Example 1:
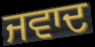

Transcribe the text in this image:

ਜਵਾਦ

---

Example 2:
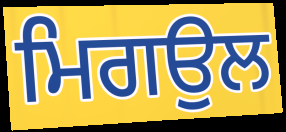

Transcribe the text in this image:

ਮਿਗਉਲ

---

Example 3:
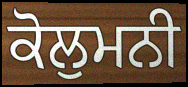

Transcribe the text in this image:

ਕੋਲੁਮਨੀ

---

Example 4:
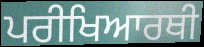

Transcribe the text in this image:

ਪਰੀਖਿਆਰਥੀ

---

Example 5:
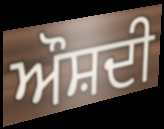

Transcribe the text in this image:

ਔਸ਼ਦੀ